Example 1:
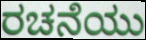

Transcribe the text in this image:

ರಚನೆಯು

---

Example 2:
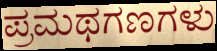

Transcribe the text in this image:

ಪ್ರಮಥಗಣಗಳು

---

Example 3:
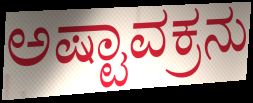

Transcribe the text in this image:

ಅಷ್ಟಾವಕ್ರನು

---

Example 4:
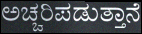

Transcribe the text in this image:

ಅಚ್ಚರಿಪಡುತ್ತಾನೆ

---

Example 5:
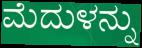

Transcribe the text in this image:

ಮೆದುಳನ್ನು